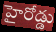
హైరోడ్డు